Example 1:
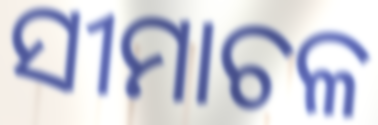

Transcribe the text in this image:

ସୀମାଚଳ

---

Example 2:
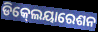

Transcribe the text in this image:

ଡିକ୍‍ଲେୟାରେଶନ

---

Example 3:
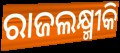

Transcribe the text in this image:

ରାଜଲକ୍ଷ୍ମୀକି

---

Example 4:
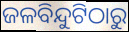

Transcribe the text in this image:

ଜଳବିନ୍ଦୁଟିଠାରୁ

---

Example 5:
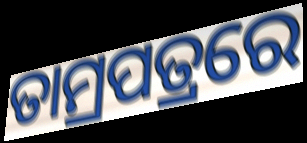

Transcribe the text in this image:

ତାମ୍ରପତ୍ରରେ